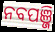
ନବପଞ୍ଜି